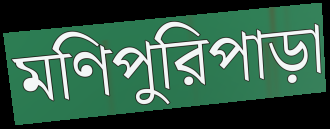
মণিপুরিপাড়া